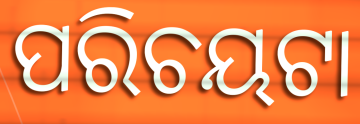
ପରିଚୟଟା